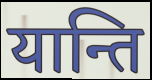
यान्ति